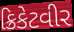
ક્રિકેટવીર